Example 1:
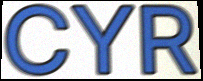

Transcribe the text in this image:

CYR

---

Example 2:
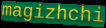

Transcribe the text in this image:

magizhchi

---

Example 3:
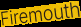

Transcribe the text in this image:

Firemouth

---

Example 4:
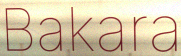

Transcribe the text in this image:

Bakara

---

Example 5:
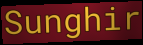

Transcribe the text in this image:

Sunghir